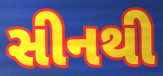
સીનથી